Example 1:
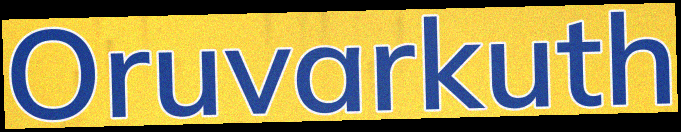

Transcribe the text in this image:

Oruvarkuth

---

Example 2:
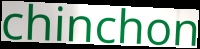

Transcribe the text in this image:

chinchon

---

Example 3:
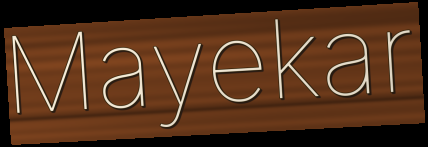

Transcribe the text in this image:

Mayekar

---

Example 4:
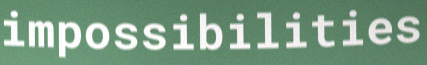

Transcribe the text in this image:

impossibilities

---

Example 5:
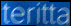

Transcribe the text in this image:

teritta